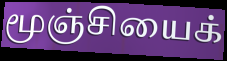
மூஞ்சியைக்